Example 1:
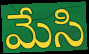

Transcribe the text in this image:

మేసి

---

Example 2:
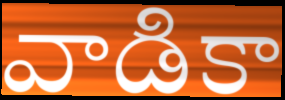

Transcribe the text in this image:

వాడికా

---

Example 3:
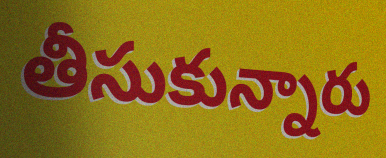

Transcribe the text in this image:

తీసుకున్నారు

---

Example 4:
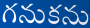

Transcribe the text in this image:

గనుకను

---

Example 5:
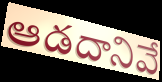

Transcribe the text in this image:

ఆడదానివే